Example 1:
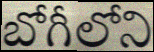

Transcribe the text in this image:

బోగీలోని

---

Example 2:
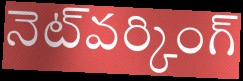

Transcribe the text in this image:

నెట్‌వర్కింగ్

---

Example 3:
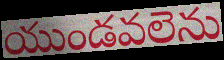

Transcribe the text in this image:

యుండవలెను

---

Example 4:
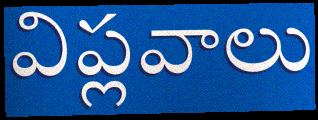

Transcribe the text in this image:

విప్లవాలు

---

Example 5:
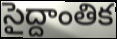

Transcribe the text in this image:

సైద్దాంతిక